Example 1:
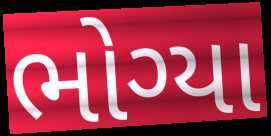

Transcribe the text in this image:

ભોગ્યા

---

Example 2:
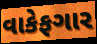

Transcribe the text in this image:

વાકેફગાર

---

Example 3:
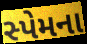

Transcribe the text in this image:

સ્પેમના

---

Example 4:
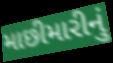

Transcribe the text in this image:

માછીમારીનું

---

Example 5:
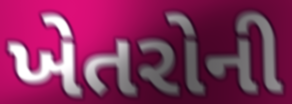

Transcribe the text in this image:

ખેતરોની